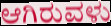
ಆಗಿರುವಳು